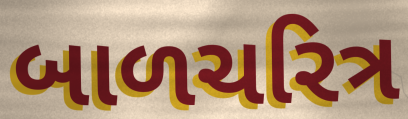
બાળચરિત્ર